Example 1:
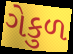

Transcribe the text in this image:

ગેકુળ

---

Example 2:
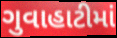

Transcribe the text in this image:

ગુવાહાટીમાં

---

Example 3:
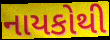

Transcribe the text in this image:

નાયકોથી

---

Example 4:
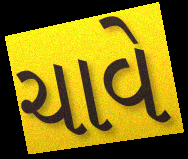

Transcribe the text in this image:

ચાવે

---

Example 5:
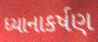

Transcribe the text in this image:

ધ્યાનાકર્ષણ